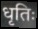
धृतिः